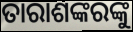
ତାରାଶଙ୍କରଙ୍କୁ